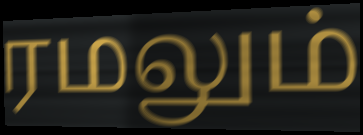
ரமலும்